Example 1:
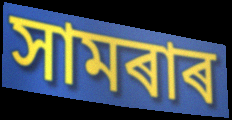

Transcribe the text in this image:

সামৰাৰ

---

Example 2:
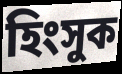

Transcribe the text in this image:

হিংসুক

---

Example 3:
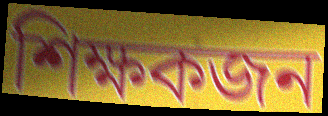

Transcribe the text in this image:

শিক্ষকজন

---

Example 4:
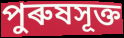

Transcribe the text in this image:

পুৰুষসূক্ত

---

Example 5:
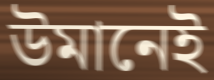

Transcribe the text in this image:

উমানেই